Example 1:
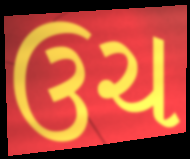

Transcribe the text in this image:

ઉચ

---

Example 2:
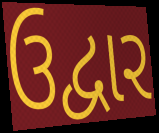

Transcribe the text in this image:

ઉદ્વાર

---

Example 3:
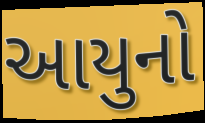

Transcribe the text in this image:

આયુનો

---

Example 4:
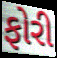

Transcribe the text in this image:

ફોરી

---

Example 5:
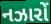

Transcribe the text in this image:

નઝારોં